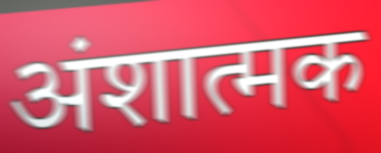
अंशात्मक